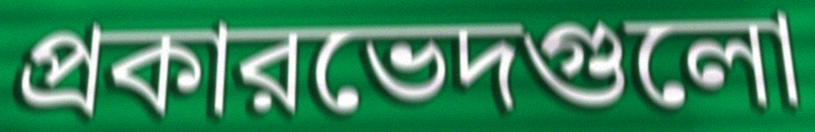
প্রকারভেদগুলো